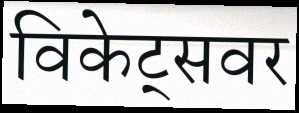
विकेट्सवर